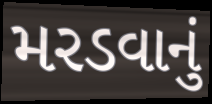
મરડવાનું